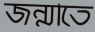
জন্মাতে